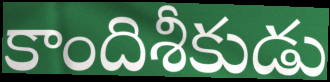
కాందిశీకుడు